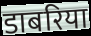
डाबरिया